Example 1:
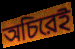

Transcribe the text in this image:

অচিরেই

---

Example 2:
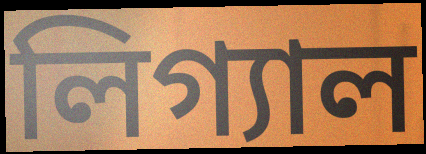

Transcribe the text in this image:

লিগ্যাল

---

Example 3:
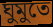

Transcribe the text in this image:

ঘুমুতে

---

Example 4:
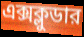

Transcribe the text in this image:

এক্সক্লুডার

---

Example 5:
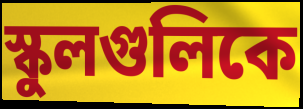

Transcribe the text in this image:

স্কুলগুলিকে